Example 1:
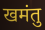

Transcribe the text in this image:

खमंतु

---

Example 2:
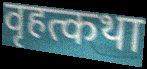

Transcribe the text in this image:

वृहत्कथा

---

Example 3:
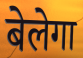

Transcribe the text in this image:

बेलेगा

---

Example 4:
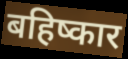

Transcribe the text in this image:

बहिष्कार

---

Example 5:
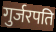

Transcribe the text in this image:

गुर्जरपति